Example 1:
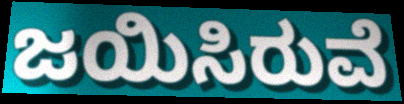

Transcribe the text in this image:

ಜಯಿಸಿರುವೆ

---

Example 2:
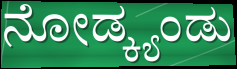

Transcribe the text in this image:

ನೋಡ್ಕ್ಯಂಡು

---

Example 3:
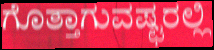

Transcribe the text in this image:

ಗೊತ್ತಾಗುವಷ್ಟರಲ್ಲಿ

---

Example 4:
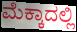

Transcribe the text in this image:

ಮೆಕ್ಕಾದಲ್ಲಿ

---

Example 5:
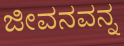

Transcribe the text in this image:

ಜೀವನವನ್ನ